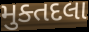
મુક્તદલા